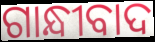
ଗାନ୍ଧୀବାଦ